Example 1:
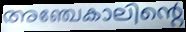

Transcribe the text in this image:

അഞ്ചേകാലിന്റെ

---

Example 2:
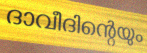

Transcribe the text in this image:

ദാവീദിന്റെയും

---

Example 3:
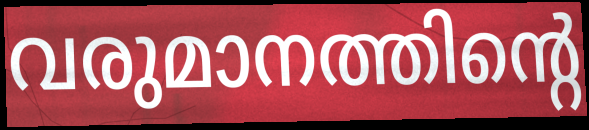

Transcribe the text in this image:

വരുമാനത്തിന്റെ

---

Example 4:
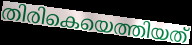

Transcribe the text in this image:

തിരികെയെത്തിയത്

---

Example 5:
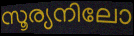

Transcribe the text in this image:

സൂര്യനിലോ